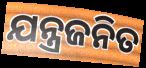
ଯନ୍ତ୍ରଜନିତ